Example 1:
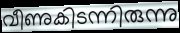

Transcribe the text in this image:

വീണുകിടന്നിരുന്നു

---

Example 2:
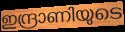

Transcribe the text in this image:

ഇന്ദ്രാണിയുടെ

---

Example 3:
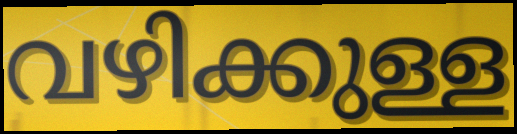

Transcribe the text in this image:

വഴിക്കുള്ള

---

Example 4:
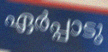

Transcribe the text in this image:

ഏർപ്പാടു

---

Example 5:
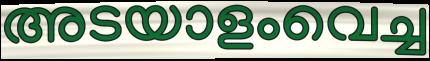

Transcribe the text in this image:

അടയാളംവെച്ച